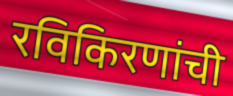
रविकिरणांची